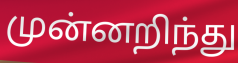
முன்னறிந்து